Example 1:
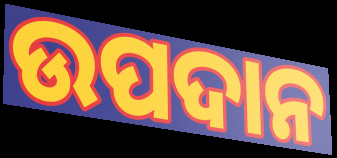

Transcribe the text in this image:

ଉପଦାନ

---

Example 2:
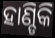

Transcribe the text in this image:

ହାଣ୍ଡିକି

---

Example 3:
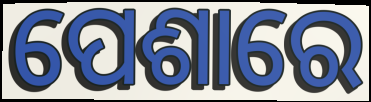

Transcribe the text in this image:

ପେଶାରେ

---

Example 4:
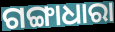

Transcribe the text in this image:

ଗଙ୍ଗାଧାରା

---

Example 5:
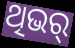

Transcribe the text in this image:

ଥିଭର୍